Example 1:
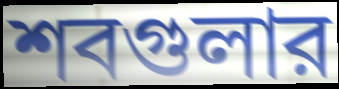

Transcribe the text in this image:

শবগুলার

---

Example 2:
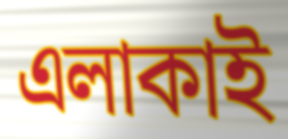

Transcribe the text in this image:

এলাকাই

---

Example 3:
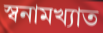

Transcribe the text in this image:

স্বনামখ্যাত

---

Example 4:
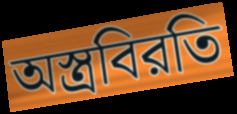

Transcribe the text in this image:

অস্ত্রবিরতি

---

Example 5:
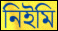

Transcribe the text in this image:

নিইমি